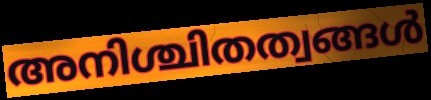
അനിശ്ചിതത്വങ്ങൾ